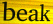
beak